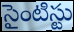
సైంటిస్టు